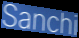
Sanchi